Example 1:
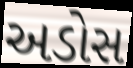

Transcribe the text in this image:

અડોસ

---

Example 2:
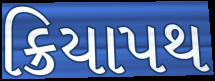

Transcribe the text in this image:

ક્રિયાપથ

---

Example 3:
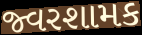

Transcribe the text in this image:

જ્વરશામક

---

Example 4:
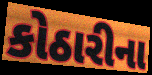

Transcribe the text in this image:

કોઠારીના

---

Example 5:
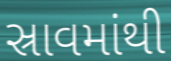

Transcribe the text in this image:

સ્રાવમાંથી